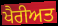
ਖੈਰੀਅਤ